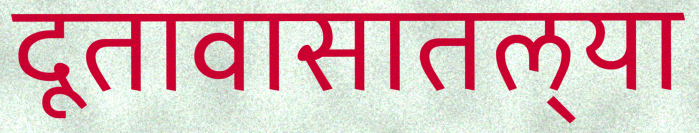
दूतावासातल्या